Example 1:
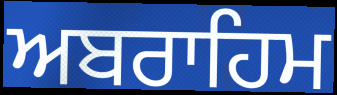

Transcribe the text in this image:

ਅਬਰਾਹਿਮ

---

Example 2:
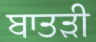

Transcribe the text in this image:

ਬਾਤੜੀ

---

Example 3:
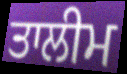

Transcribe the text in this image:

ਤਾਲੀਮ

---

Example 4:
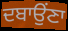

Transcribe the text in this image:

ਦਬਾਉਂਣਾ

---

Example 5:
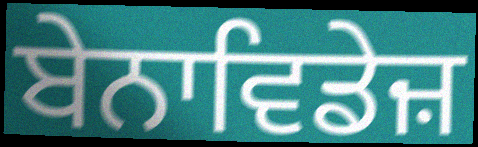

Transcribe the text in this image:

ਬੇਨਾਵਿਡੇਜ਼